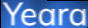
Yeara